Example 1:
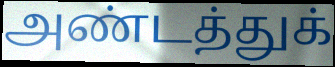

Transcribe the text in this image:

அண்டத்துக்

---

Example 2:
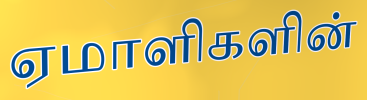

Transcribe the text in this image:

ஏமாளிகளின்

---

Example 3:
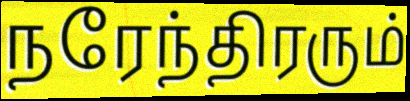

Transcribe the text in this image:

நரேந்திரரும்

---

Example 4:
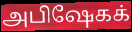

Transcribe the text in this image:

அபிஷேகக்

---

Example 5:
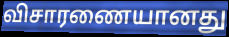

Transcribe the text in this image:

விசாரணையானது